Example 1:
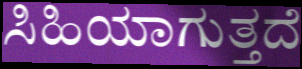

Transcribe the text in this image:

ಸಿಹಿಯಾಗುತ್ತದೆ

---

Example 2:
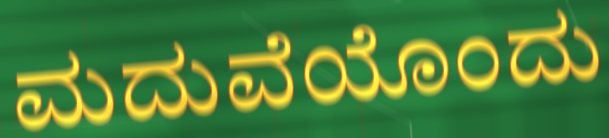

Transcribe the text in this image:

ಮದುವೆಯೊಂದು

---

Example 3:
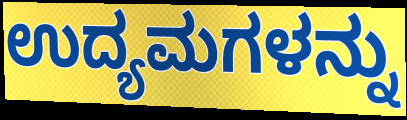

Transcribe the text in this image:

ಉದ್ಯಮಗಳನ್ನು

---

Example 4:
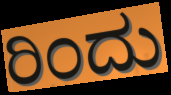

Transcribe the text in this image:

ರಿಂದು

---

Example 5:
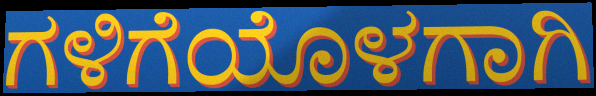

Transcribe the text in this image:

ಗಳಿಗೆಯೊಳಗಾಗಿ